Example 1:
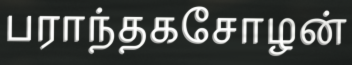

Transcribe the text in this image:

பராந்தகசோழன்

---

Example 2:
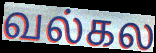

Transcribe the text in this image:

வல்கல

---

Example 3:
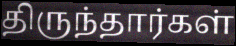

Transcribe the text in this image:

திருந்தார்கள்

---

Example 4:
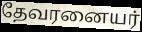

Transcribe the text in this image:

தேவரனையர்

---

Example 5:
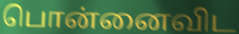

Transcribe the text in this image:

பொன்னைவிட